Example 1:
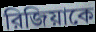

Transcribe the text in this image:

রিজিয়াকে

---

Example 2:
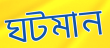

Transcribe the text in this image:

ঘটমান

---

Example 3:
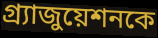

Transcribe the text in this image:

গ্র্যাজুয়েশনকে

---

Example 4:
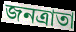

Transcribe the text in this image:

জনত্রাতা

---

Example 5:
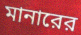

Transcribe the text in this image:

মানারের